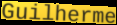
Guilherme